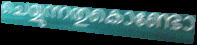
ചെയ്യുന്നതുകൊണ്ടോ